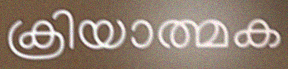
ക്രിയാത്മക